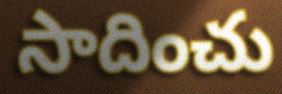
సాదించు